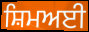
ਸ਼ਿਮਅਈ